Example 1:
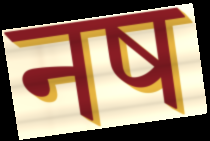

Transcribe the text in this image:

नष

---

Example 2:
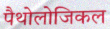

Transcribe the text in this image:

पैथोलोजिकल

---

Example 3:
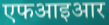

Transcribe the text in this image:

एफआइआर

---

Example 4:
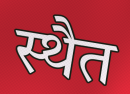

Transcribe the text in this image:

स्थैत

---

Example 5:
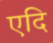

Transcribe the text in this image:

एदि